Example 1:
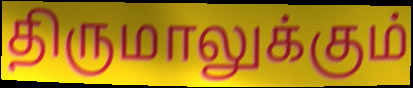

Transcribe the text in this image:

திருமாலுக்கும்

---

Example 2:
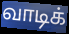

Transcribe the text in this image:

வாடிக்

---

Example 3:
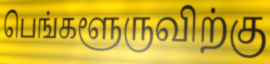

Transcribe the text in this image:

பெங்களூருவிற்கு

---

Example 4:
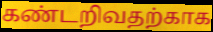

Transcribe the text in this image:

கண்டறிவதற்காக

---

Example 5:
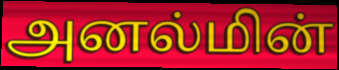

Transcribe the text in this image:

அனல்மின்